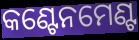
କଣ୍ଟେନମେଣ୍ଟ